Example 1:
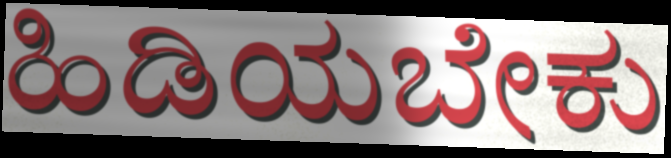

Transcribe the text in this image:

ಹಿಡಿಯಬೇಕು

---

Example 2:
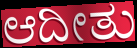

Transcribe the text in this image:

ಆದೀತು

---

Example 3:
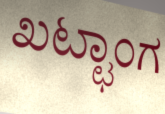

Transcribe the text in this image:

ಖಟ್ಟಾಂಗ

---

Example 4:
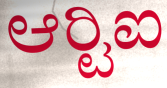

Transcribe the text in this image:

ಆರ್‍ಟಿಐ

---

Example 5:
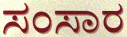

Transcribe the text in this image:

ಸಂಸಾರ